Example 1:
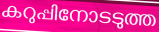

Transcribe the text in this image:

കറുപ്പിനോടടുത്ത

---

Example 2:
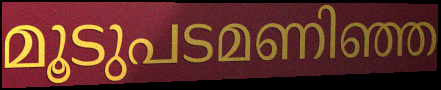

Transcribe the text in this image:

മൂടുപടമണിഞ്ഞ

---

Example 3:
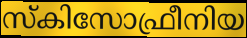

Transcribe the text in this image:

സ്കിസോഫ്രീനിയ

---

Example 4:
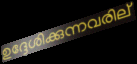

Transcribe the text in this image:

ഉദ്ദേശിക്കുന്നവരില്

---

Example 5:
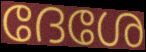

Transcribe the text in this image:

ദേശേ